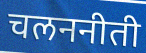
चलननीती